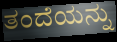
ತಂದೆಯನ್ನು